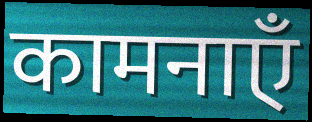
कामनाएँ